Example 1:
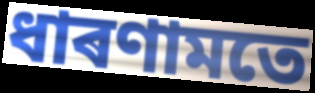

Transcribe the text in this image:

ধাৰণামতে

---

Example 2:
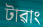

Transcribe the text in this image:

টাৱাং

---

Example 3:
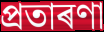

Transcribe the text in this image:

প্ৰতাৰণা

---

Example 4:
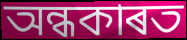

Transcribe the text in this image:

অন্ধকাৰত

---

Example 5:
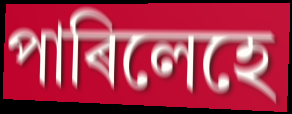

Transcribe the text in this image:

পাৰিলেহে